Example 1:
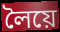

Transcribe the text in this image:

লৈয়ে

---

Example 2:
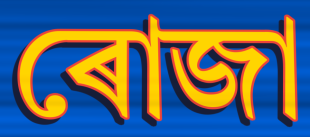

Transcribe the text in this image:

ৰোজা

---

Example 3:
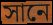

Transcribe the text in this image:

সানে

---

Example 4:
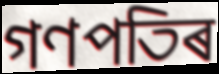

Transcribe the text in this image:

গণপতিৰ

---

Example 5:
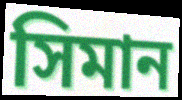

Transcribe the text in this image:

সিমান